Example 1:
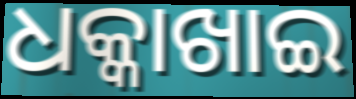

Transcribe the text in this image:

ଧକ୍କାଖାଇ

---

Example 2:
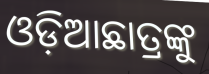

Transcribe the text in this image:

ଓଡ଼ିଆଛାତ୍ରଙ୍କୁ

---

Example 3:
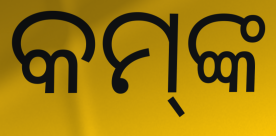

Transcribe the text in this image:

କମ୍‌ଙ୍କ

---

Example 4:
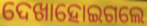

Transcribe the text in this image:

ଦେଖାହୋଇଗଲେ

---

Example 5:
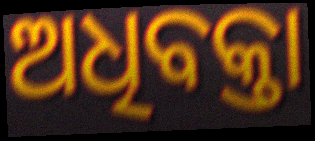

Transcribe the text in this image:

ଅଧିବକ୍ତା